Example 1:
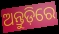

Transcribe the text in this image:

ଅନ୍ତୁଡ଼ିରେ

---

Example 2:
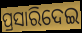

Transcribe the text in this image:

ପ୍ରସାରିଦେଇ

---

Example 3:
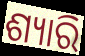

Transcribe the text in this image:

ଶ୍ୟାରି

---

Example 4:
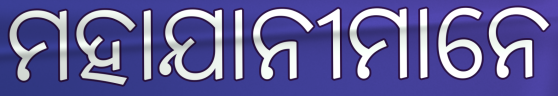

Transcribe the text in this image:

ମହାଯାନୀମାନେ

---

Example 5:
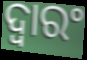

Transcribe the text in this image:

ଦ୍ୱାରଂ